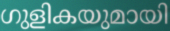
ഗുളികയുമായി